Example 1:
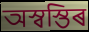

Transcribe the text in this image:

অস্বস্তিৰ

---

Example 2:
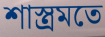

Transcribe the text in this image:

শাস্ত্ৰমতে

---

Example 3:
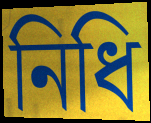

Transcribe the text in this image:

নিধি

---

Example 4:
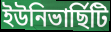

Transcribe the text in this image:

ইউনিভাৰ্ছিটি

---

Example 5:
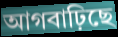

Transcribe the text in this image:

আগবাঢ়িছে